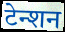
टेन्शन